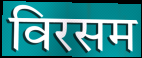
विरसम